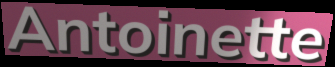
Antoinette